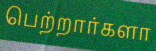
பெற்றார்களா